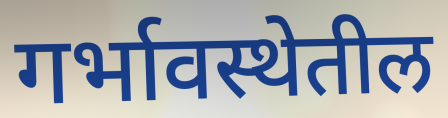
गर्भावस्थेतील